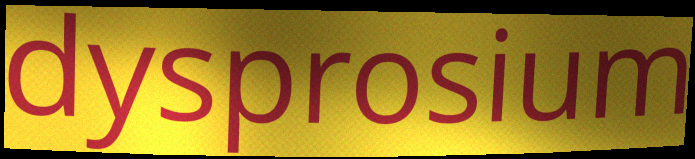
dysprosium